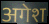
अगेश